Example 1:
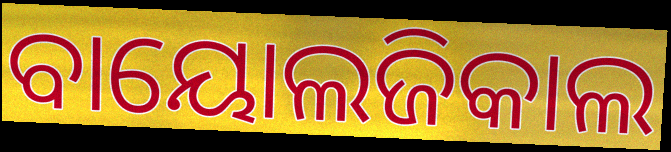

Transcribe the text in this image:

ବାୟୋଲଜିକାଲ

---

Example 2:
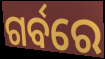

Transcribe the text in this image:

ଗର୍ବରେ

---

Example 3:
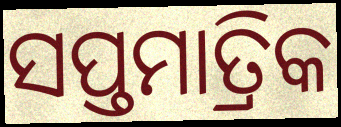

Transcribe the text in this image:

ସପ୍ତମାତ୍ରିକ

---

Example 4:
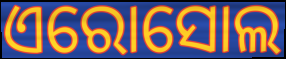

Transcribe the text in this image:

ଏରୋସୋଲ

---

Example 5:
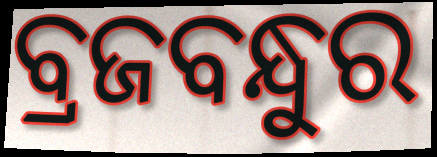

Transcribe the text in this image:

ବ୍ରଜବନ୍ଧୁର